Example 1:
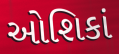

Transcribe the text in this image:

ઓશિકાં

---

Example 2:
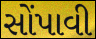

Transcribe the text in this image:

સોંપાવી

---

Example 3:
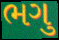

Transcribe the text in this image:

ભગુ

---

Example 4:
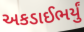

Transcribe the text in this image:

અકડાઈભર્યું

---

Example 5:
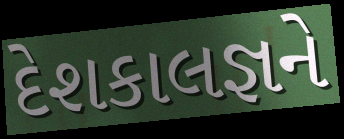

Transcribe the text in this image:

દેશકાલજ્ઞને